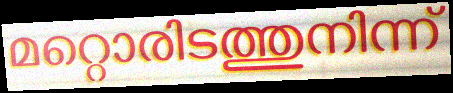
മറ്റൊരിടത്തുനിന്ന്